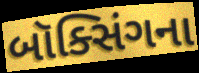
બૉક્સિંગના